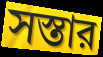
সস্তার